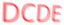
DCDE